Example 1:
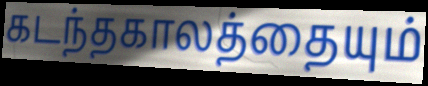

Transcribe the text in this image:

கடந்தகாலத்தையும்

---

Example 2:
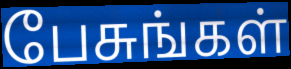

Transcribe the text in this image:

பேசுங்கள்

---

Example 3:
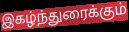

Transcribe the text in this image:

இகழ்ந்துரைக்கும்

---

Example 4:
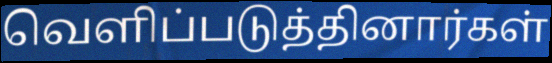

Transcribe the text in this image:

வெளிப்படுத்தினார்கள்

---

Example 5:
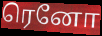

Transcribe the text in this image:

ரெனோ